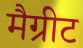
मैग्रीट